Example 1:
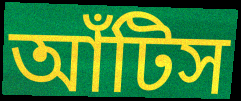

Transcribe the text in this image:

আঁটিস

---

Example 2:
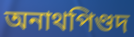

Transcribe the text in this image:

অনাথপিণ্ডদ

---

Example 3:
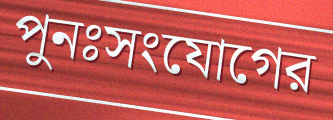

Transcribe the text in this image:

পুনঃসংযোগের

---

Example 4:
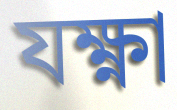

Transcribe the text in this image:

যক্ষ্ণা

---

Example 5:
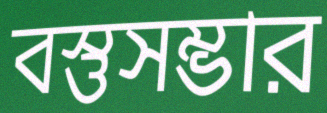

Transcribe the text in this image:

বস্তুসম্ভার